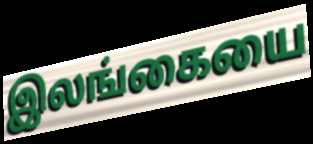
இலங்கையை